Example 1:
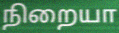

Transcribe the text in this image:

நிறையா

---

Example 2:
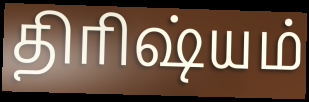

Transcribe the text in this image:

திரிஷ்யம்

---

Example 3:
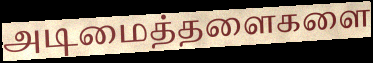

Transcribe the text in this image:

அடிமைத்தளைகளை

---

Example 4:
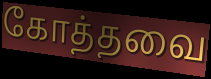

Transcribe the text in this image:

கோத்தவை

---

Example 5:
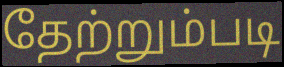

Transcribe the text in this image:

தேற்றும்படி